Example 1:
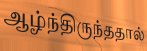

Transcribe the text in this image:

ஆழ்ந்திருந்ததால்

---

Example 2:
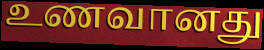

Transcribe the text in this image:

உணவானது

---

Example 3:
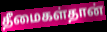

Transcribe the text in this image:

தீமைகள்தான்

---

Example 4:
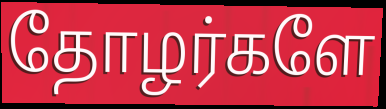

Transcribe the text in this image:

தோழர்களே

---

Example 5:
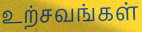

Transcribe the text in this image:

உற்சவங்கள்